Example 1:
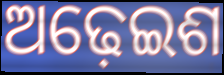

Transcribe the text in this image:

ଅଢ଼େଇଶ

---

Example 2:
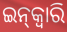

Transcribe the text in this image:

ଇନ୍‌କ୍ଵାରି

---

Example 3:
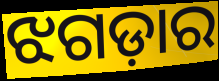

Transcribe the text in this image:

ଝଗଡ଼ାର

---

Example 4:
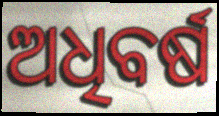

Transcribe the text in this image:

ଅଧିବର୍ଷ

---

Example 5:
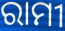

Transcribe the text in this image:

ରାମୀ